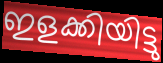
ഇളക്കിയിട്ടു